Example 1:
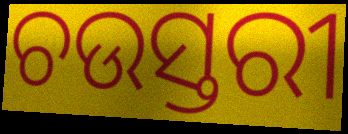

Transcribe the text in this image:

ଚଉସ୍ତରୀ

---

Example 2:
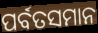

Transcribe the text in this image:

ପର୍ବତସମାନ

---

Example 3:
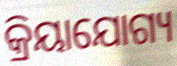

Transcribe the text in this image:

କ୍ରିୟାଯୋଗ୍ୟ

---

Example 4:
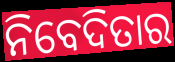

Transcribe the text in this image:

ନିବେଦିତାର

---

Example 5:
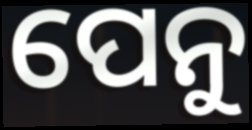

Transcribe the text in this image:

ପେନୁ